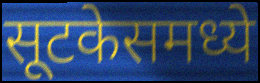
सूटकेसमध्ये